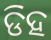
ଡିହ